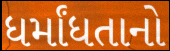
ધર્માંધતાનો